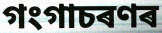
গংগাচৰণৰ